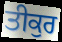
ਤੀਕੁਰ